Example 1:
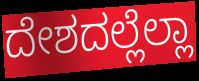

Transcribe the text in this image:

ದೇಶದಲ್ಲೆಲ್ಲಾ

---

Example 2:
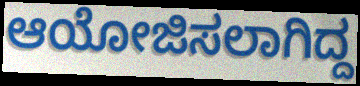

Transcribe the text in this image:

ಆಯೋಜಿಸಲಾಗಿದ್ದ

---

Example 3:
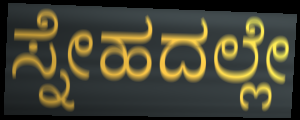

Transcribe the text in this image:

ಸ್ನೇಹದಲ್ಲೇ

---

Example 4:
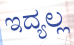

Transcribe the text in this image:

ಇದ್ಯಲ್ಲ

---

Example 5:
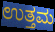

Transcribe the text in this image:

ಉತ್ತಮ